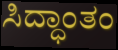
ಸಿದ್ಧಾಂತಂ